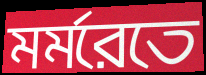
মর্মরেতে